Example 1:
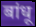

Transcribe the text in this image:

बांधू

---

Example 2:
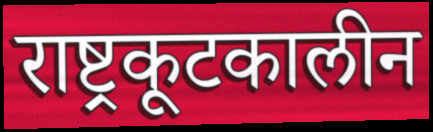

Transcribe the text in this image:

राष्ट्रकूटकालीन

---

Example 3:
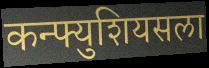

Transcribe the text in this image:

कन्फ्युशियसला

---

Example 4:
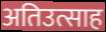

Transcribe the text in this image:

अतिउत्साह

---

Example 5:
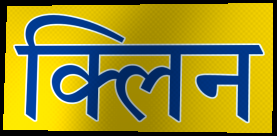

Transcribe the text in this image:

क्लिन